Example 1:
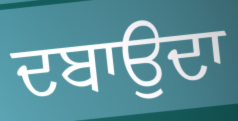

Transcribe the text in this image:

ਦਬਾਉਦਾ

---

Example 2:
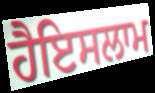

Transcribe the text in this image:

ਹੈਇਸਲਾਮ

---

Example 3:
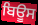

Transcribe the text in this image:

ਬਿਊਸ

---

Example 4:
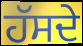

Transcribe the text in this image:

ਹੱਸਦੇ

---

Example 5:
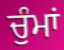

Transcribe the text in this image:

ਚੁੰਮਾਂ